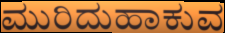
ಮುರಿದುಹಾಕುವ